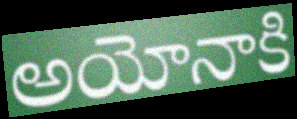
అయోనాకి